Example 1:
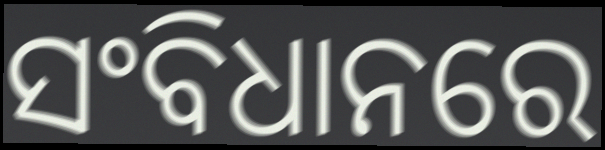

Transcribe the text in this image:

ସଂବିଧାନରେ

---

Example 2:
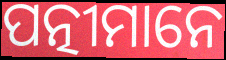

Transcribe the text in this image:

ପତ୍ନୀମାନେ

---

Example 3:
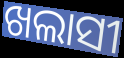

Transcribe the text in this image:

ଖଲାସୀ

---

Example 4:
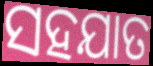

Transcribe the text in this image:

ସହଯାତ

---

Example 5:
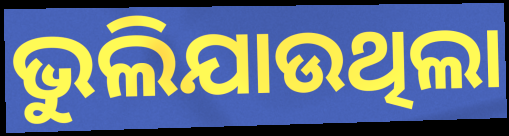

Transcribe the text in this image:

ଭୁଲିଯାଉଥିଲା